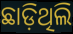
ଛାଡ଼ିଥିଲି